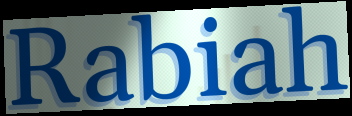
Rabiah